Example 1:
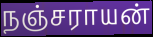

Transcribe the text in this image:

நஞ்சராயன்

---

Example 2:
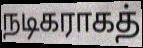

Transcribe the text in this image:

நடிகராகத்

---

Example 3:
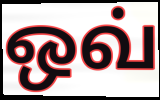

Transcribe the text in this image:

ஒவ்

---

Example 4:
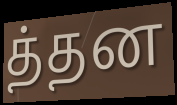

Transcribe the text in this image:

த்தன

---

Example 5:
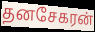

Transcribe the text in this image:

தனசேகரன்